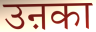
उऩका